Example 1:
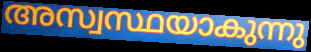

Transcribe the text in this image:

അസ്വസ്ഥയാകുന്നു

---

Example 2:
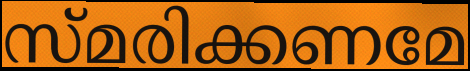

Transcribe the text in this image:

സ്മരിക്കണമേ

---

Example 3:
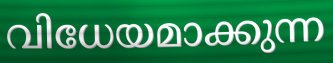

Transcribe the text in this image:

വിധേയമാക്കുന്ന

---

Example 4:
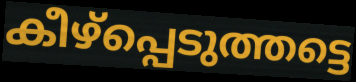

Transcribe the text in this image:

കീഴ്പ്പെടുത്തട്ടെ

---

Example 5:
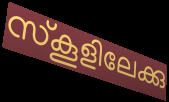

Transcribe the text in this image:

സ്കൂളിലേക്കു